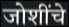
जोशींचे